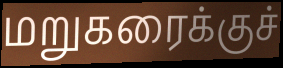
மறுகரைக்குச்